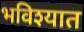
भविश्यात